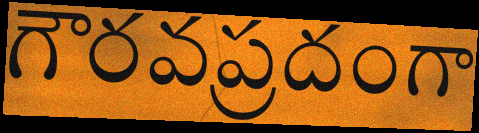
గౌరవప్రదంగా